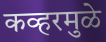
कव्हरमुळे